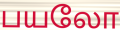
பயலோ